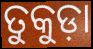
ତୁକୁଡ଼ା